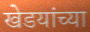
खेडयांच्या